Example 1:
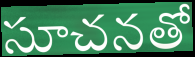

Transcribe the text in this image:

సూచనతో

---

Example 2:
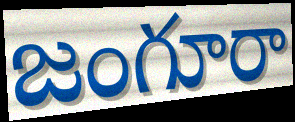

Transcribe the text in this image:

జంగూరా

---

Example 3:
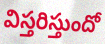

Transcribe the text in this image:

విస్తరిస్తుందో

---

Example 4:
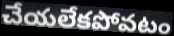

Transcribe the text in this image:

చేయలేకపోవటం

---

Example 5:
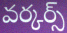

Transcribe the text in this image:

వర్కర్స్